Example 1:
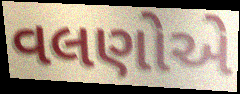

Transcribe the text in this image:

વલણોએ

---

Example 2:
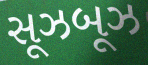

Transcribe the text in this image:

સૂઝબૂઝ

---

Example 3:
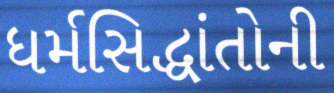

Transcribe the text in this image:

ધર્મસિદ્ધાંતોની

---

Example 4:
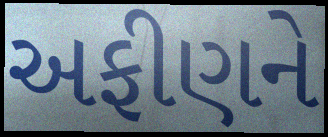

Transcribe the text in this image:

અફીણને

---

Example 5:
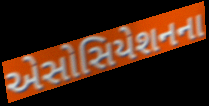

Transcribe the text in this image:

એસોસિયેશનના